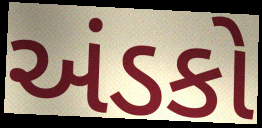
અંડકો